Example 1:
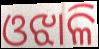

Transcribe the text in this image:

ଓଝାଳି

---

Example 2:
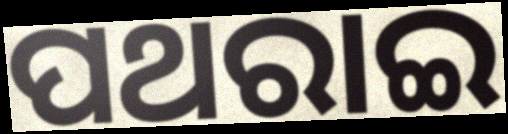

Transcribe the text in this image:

ପଥରାଇ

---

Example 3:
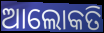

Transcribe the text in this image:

ଆଲୋକତି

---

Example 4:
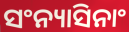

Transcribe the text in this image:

ସଂନ୍ୟାସିନାଂ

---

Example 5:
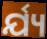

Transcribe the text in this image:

ର୍ଯ୍ୟ